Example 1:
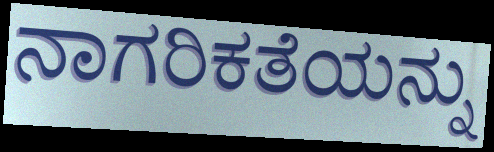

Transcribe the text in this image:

ನಾಗರಿಕತೆಯನ್ನು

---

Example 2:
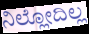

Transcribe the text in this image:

ನಿಲ್ಲೋದಿಲ್ಲ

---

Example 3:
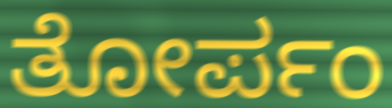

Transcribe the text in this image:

ತೋರ್ಪಂ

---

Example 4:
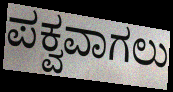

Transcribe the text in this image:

ಪಕ್ವವಾಗಲು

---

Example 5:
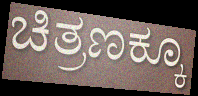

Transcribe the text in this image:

ಚಿತ್ರಣಕ್ಕೂ